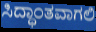
ಸಿದ್ಧಾಂತವಾಗಲಿ